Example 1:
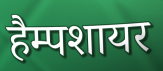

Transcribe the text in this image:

हैम्पशायर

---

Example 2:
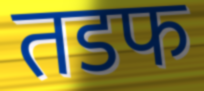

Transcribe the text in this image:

तडफ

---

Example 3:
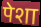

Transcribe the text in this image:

पेशा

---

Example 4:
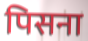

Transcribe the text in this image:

पिसना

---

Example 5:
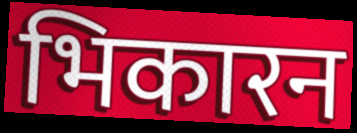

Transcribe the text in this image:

भिकारन